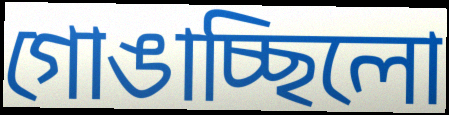
গোঙাচ্ছিলো